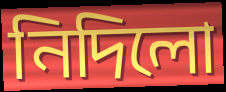
নিদিলো